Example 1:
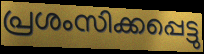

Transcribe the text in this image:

പ്രശംസിക്കപ്പെട്ടു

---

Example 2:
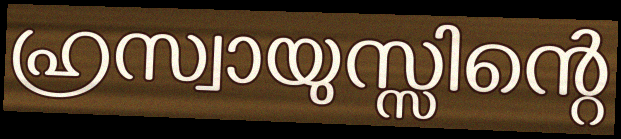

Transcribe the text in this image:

ഹ്രസ്വായുസ്സിന്റെ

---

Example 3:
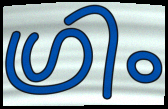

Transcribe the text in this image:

ഗ്രിം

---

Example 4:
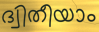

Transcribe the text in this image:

ദ്വിതീയാം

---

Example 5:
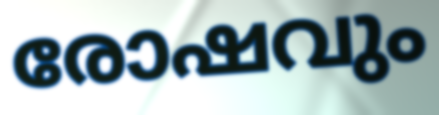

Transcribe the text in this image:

രോഷവും